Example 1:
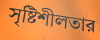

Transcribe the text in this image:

সৃষ্টিশীলতার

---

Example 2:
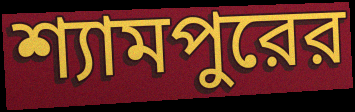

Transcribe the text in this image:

শ্যামপুরের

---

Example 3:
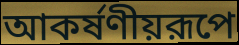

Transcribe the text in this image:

আকর্ষণীয়রূপে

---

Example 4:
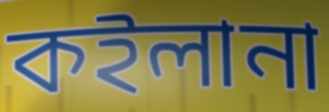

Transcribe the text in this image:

কইলানা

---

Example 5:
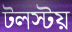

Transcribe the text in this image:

টলস্টয়